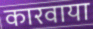
कारवाया